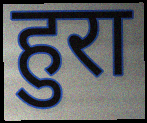
हुरा